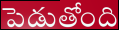
పెడుతోంది